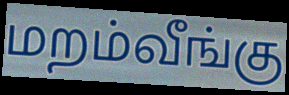
மறம்வீங்கு